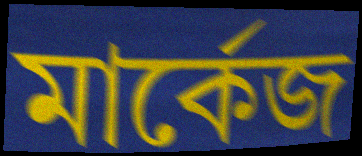
মার্কেজ